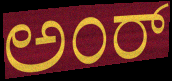
ಅಂರ್